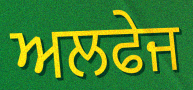
ਅਲਫੇਜ